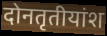
दोनतृतीयांश